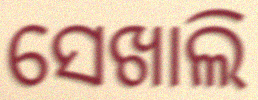
ସେଖାଲି